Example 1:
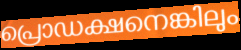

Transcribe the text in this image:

പ്രൊഡക്ഷനെങ്കിലും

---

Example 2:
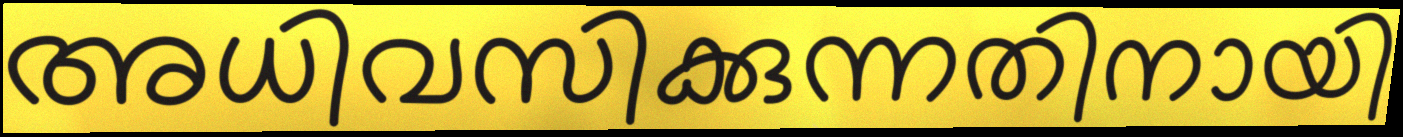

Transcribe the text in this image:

അധിവസിക്കുന്നതിനായി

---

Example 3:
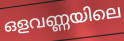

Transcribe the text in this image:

ഒളവണ്ണയിലെ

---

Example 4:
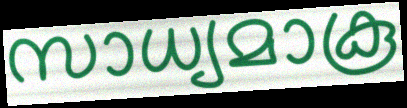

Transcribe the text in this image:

സാധ്യമാകൂ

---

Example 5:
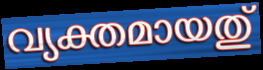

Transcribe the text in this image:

വ്യക്തമായതു്